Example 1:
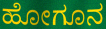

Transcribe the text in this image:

ಹೋಗೂನ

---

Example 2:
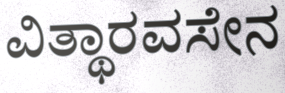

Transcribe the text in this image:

ವಿತ್ಥಾರವಸೇನ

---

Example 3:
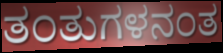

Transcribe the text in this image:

ತಂತುಗಳನಂತ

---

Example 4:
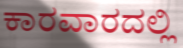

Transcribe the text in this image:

ಕಾರವಾರದಲ್ಲಿ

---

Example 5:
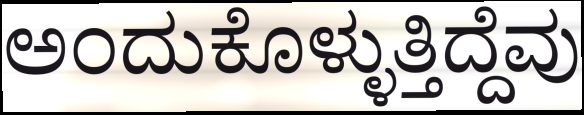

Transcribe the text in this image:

ಅಂದುಕೊಳ್ಳುತ್ತಿದ್ದೆವು